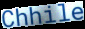
Chhile